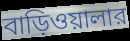
বাড়িওয়ালার